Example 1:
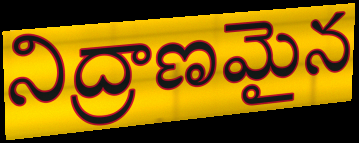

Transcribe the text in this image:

నిద్రాణమైన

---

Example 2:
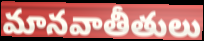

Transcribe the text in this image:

మానవాతీతులు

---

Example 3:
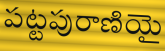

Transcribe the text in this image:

పట్టపురాణియై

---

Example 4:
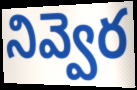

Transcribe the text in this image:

నివ్వెర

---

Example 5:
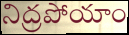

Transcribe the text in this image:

నిద్రపోయాం